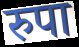
रुपा